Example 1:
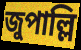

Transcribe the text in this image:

জুপাল্লি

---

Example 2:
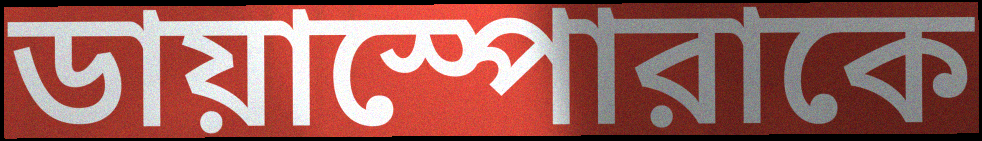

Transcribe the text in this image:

ডায়াস্পোরাকে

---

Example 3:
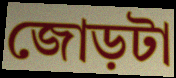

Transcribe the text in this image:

জোড়টা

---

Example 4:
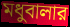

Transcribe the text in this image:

মধুবালার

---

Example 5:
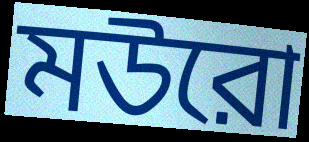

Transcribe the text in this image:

মউরো